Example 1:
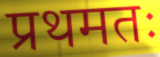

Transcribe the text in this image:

प्रथमतः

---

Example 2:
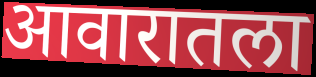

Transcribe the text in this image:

आवारातला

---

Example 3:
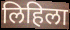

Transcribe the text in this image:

लिहिला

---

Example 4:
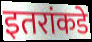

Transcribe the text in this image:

इतरांकडे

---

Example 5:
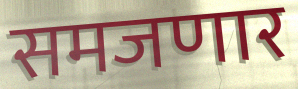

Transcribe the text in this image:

समजणार